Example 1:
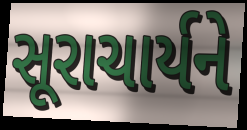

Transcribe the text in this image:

સૂરાચાર્યને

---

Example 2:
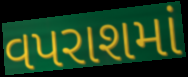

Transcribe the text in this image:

વપરાશમાં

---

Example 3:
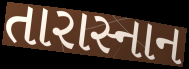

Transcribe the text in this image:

તારાસ્નાન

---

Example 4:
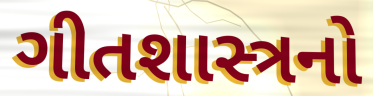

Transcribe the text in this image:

ગીતશાસ્ત્રનો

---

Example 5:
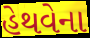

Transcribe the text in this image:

હેથવેના